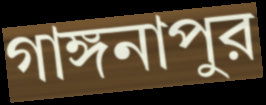
গাঙ্গনাপুর